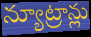
న్యూట్రాన్లు